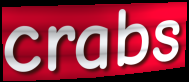
crabs